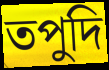
তপুদি